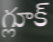
గ్లూక్